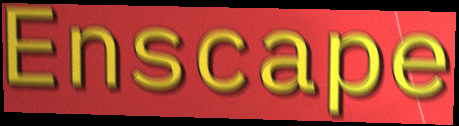
Enscape